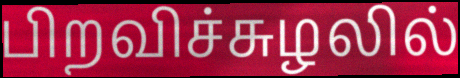
பிறவிச்சுழலில்